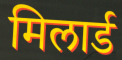
मिलार्ड